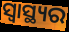
ସ୍ବାସ୍ଥ୍ୟର